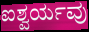
ಐಶ್ವರ್ಯವು